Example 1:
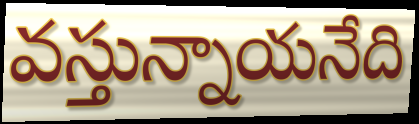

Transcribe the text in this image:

వస్తున్నాయనేది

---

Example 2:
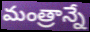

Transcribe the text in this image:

మంత్రాన్నే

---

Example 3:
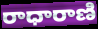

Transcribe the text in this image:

రాధారాణి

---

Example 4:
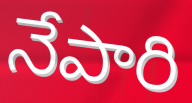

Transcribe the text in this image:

నేపారి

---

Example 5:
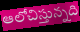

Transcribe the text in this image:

ఆలోచిస్తున్నది